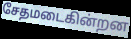
சேதமடைகின்றன